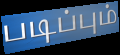
படிப்பும்